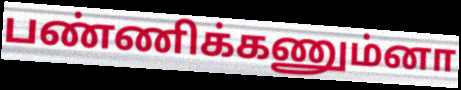
பண்ணிக்கணும்னா